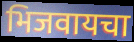
भिजवायचा